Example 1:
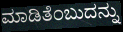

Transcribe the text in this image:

ಮಾಡಿತೆಂಬುದನ್ನು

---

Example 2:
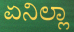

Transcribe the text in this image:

ಏನಿಲ್ಲಾ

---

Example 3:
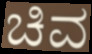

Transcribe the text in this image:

ಚಿವ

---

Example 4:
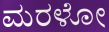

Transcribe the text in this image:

ಮರಳೋ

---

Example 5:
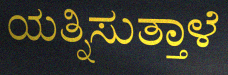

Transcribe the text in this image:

ಯತ್ನಿಸುತ್ತಾಳೆ